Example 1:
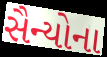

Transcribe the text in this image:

સૈન્યોના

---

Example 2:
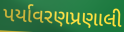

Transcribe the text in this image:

પર્યાવરણપ્રણાલી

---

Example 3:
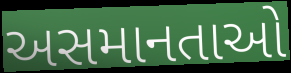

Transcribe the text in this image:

અસમાનતાઓ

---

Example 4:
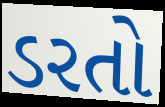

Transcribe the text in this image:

ડરતો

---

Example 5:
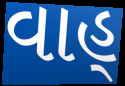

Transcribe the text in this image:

વાહ્